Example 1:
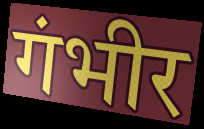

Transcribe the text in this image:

गंभीर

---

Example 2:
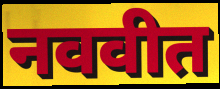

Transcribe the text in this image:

नववीत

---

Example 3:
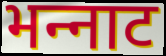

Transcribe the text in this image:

भन्नाट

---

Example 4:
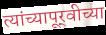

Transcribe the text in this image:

त्यांच्यापूर्वीच्या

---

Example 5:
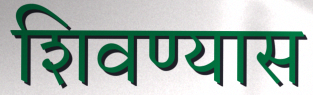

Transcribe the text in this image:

शिवण्यास